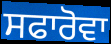
ਸਫਾਰੋਵਾ